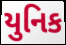
યુનિક